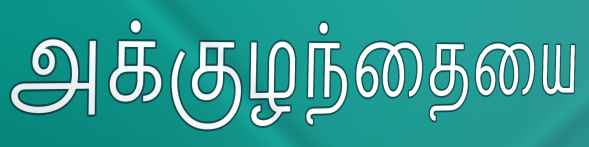
அக்குழந்தையை